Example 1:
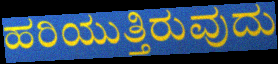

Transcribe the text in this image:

ಹರಿಯುತ್ತಿರುವುದು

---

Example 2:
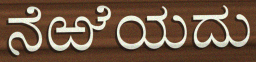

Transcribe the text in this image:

ನೆಱೆಯದು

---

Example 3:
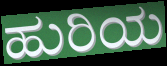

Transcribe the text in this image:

ಹುರಿಯ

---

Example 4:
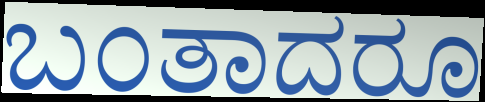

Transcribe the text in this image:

ಬಂತಾದರೂ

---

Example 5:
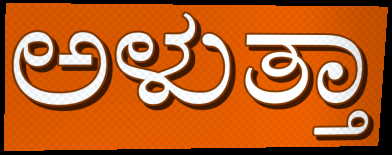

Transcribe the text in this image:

ಅಳುತ್ತಾ